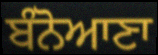
ਬੰਨੋਆਣਾ